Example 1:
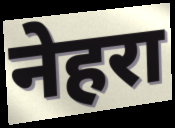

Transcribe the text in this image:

नेहरा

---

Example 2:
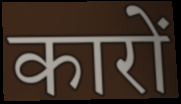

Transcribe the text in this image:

कारों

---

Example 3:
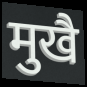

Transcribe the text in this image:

मुखै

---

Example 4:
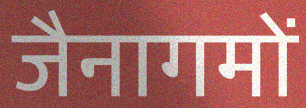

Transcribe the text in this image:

जैनागमों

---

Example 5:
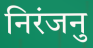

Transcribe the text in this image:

निरंजनु